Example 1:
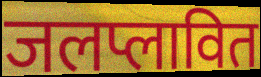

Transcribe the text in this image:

जलप्लावित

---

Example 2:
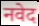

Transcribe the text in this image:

नवेद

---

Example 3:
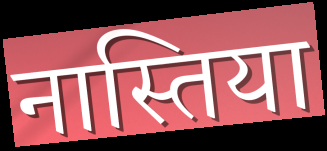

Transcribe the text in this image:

नास्तिया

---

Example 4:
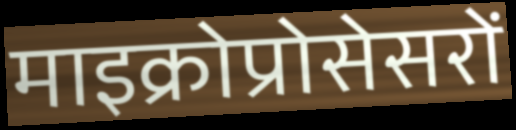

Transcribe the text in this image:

माइक्रोप्रोसेसरों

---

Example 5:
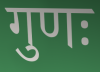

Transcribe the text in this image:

गुणः